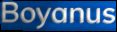
Boyanus